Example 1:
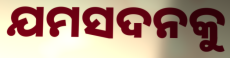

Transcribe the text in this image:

ଯମସଦନକୁ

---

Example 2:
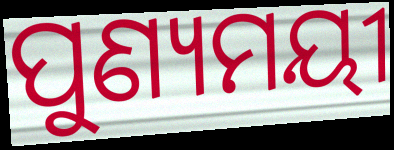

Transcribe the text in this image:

ପୁଣ୍ୟମୟୀ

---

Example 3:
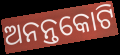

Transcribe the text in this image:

ଅନନ୍ତକୋଟି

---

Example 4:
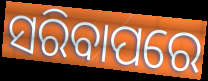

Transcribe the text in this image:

ସରିବାପରେ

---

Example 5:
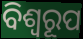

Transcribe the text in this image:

ବିଶ୍ୱରୂପ